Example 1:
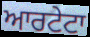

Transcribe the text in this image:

ਆਰਟੇਟਾ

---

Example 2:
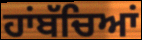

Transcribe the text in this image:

ਹਾਂਬੱਚਿਆਂ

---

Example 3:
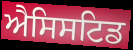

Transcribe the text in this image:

ਐਸਿਸਟਿਡ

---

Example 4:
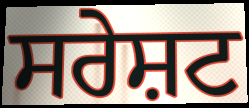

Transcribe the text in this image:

ਸਰੇਸ਼ਟ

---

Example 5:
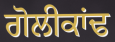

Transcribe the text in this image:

ਗੋਲੀਕਾਂਢ